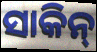
ସାକିନ୍